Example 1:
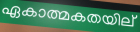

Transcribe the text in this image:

ഏകാത്മകതയില്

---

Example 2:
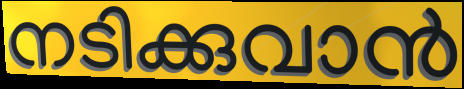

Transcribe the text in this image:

നടിക്കുവാൻ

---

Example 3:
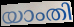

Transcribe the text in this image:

യാംതി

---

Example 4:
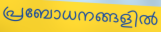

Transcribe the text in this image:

പ്രബോധനങ്ങളിൽ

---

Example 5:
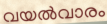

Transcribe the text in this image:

വയൽവാരം